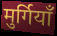
मुर्गियाँ